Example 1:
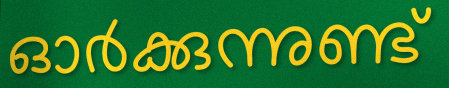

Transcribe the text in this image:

ഓർക്കുന്നുണ്ട്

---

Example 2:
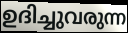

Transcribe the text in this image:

ഉദിച്ചുവരുന്ന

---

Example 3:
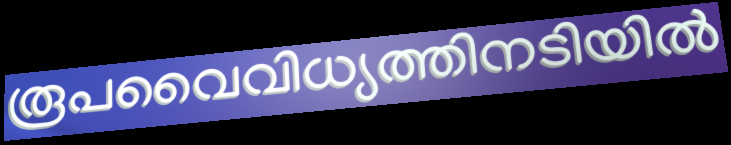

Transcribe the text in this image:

രൂപവൈവിധ്യത്തിനടിയിൽ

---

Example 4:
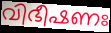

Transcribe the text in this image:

വിഭീഷണഃ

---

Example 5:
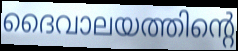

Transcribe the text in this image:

ദൈവാലയത്തിന്റെ